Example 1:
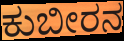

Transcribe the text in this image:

ಕುಬೀರನ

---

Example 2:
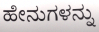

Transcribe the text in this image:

ಹೇನುಗಳನ್ನು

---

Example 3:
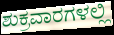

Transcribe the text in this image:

ಶುಕ್ರವಾರಗಳಲ್ಲಿ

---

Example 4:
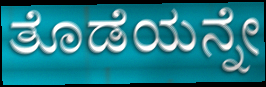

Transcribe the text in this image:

ತೊಡೆಯನ್ನೇ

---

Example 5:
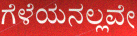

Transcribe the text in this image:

ಗೆಳೆಯನಲ್ಲವೇ